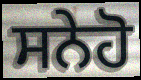
ਸਨੇਹੋ